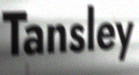
Tansley